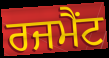
ਰਜਮੈਂਟ